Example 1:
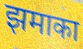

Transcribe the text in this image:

झमाका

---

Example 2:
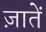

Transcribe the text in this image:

ज़ातें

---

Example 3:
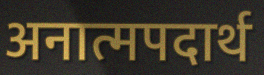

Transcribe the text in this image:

अनात्मपदार्थ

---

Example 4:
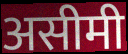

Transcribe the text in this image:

असीमी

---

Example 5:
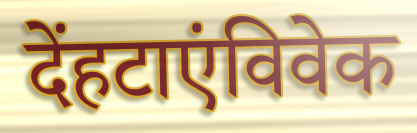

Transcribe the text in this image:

देंहटाएंविवेक